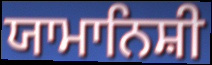
ਯਾਮਾਨਿਸ਼ੀ